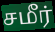
சமீர்